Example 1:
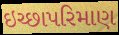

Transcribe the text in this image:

ઇચ્છાપરિમાણ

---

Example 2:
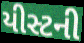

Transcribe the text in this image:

યીસ્ટની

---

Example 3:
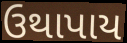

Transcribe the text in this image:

ઉથાપાય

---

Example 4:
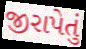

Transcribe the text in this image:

જીરાપેતું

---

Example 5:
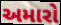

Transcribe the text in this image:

અમારો